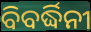
ବିବର୍ଦ୍ଧିନୀ